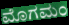
ಮೊಗಮಂ